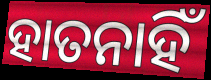
ହାତନାହିଁ